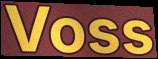
Voss